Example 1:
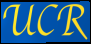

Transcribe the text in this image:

UCR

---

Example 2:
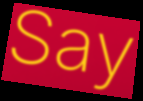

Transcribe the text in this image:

Say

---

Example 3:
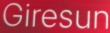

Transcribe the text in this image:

Giresun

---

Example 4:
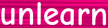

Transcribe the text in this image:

unlearn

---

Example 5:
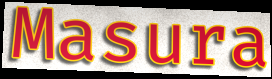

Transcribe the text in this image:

Masura